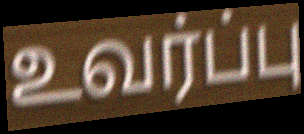
உவர்ப்பு